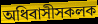
অধিবাসীসকলক